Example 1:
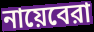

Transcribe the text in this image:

নায়েবেরা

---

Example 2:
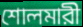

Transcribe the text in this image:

শোলমারী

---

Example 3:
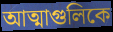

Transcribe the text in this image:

আত্মাগুলিকে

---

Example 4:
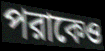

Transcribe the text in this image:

পরাকেও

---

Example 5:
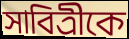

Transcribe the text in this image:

সাবিত্রীকে